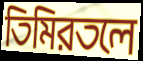
তিমিরতলে